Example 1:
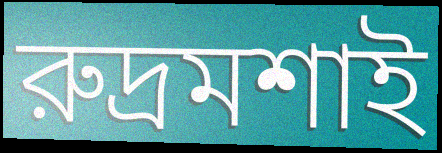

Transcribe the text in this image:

রুদ্রমশাই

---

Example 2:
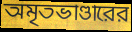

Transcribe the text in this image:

অমৃতভাণ্ডারের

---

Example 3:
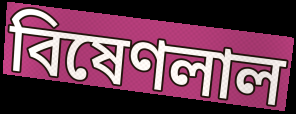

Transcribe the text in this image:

বিষেণলাল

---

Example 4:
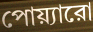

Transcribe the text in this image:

পোয়্যারো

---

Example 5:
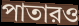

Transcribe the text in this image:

পাতারও